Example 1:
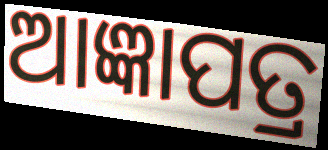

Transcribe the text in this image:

ଆଜ୍ଞାପତ୍ର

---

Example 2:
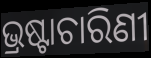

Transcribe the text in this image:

ଭ୍ରଷ୍ଟାଚାରିଣୀ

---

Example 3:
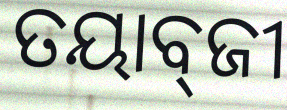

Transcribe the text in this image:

ତୟାବ୍‌ଜୀ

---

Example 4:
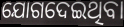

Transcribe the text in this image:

ଯୋଗଦେଇଥିବା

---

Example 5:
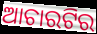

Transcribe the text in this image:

ଆଚାରଟିର